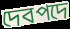
দেবপদে